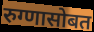
रुग्णासोबत